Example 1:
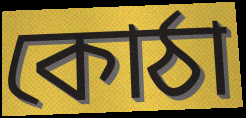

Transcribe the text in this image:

কোঠা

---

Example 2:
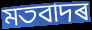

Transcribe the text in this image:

মতবাদৰ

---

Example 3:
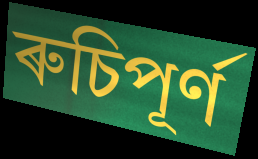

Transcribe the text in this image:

ৰুচিপূৰ্ণ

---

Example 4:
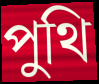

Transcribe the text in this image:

পুথি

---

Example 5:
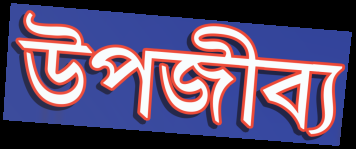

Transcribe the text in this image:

উপজীব্য